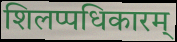
शिलप्पधिकारम्